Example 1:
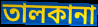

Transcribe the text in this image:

তালকানা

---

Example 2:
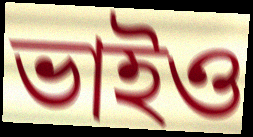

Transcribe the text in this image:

ভাইও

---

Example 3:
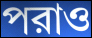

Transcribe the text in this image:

পরাও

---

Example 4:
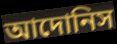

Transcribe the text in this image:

আদোনিস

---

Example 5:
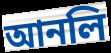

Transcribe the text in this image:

আনলি